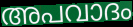
അപവാദം